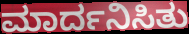
ಮಾರ್ದನಿಸಿತು